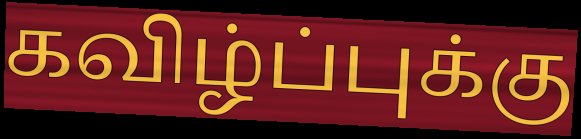
கவிழ்ப்புக்கு